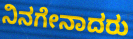
ನಿನಗೇನಾದರು